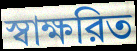
স্বাক্ষরিত